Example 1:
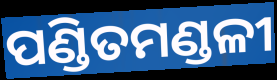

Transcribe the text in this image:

ପଣ୍ଡିତମଣ୍ଡଳୀ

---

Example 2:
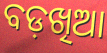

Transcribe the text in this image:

ବଡ଼ଖିଆ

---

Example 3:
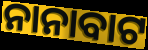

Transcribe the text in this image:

ନାନାବାଟ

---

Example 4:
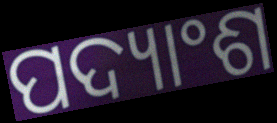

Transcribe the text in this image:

ପଦ୍ୟାଂଶ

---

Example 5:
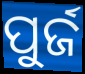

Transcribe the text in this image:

ପୁର୍ଜ